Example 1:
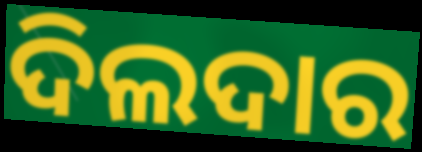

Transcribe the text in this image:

ଦିଲଦାର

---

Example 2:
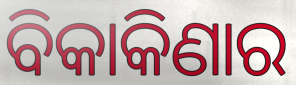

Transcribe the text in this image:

ବିକାକିଣାର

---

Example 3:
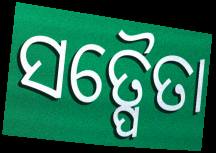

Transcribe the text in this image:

ସତ୍ପୈତା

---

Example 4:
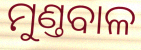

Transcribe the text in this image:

ମୁଣ୍ତବାଳ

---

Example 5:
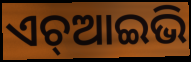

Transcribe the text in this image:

ଏଚ୍ଆଇଭି